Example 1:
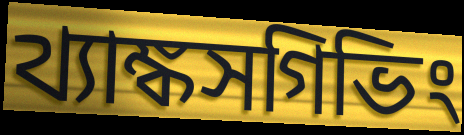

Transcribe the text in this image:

থ্যাঙ্কসগিভিং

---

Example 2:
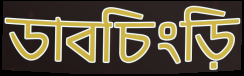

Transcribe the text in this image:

ডাবচিংড়ি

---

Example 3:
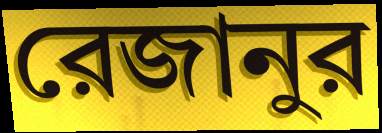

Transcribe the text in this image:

রেজানুর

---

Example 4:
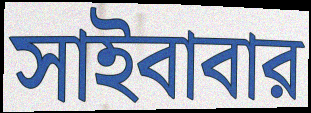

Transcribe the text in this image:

সাইবাবার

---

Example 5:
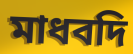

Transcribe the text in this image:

মাধবদি